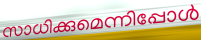
സാധിക്കുമെന്നിപ്പോൾ